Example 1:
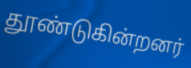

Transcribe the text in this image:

தூண்டுகின்றனர்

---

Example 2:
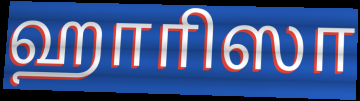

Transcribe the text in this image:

ஹாரிஸா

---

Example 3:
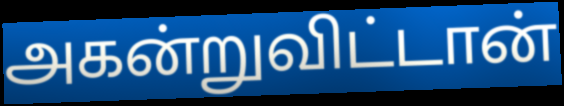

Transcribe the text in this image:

அகன்றுவிட்டான்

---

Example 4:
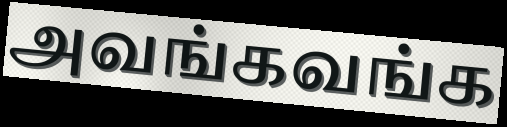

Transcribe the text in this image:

அவங்கவங்க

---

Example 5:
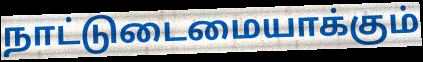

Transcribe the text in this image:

நாட்டுடைமையாக்கும்